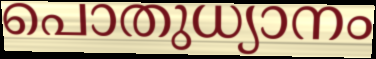
പൊതുധ്യാനം